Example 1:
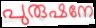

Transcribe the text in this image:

പുരുഷനേ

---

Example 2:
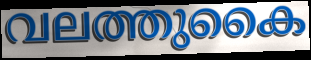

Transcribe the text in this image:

വലത്തുകൈ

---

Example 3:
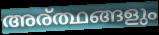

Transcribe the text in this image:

അര്ത്ഥങ്ങളും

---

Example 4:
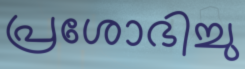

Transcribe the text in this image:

പ്രശോഭിച്ചു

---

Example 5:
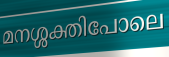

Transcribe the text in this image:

മനശ്ശക്തിപോലെ